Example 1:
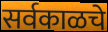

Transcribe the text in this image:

सर्वकाळचे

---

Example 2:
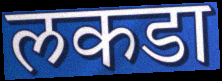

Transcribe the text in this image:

लकडा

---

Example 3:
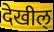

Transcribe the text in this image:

देखील्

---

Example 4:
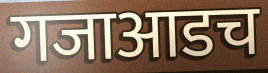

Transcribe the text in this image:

गजाआडच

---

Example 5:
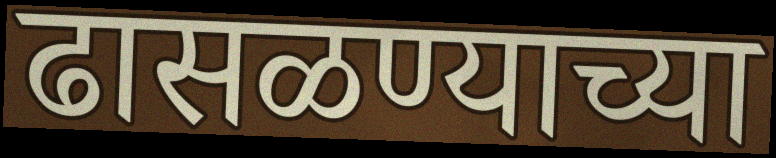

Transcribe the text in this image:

ढासळण्याच्या